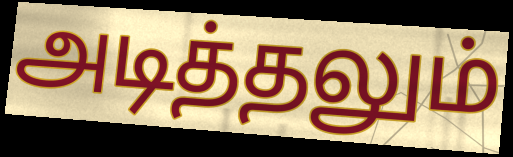
அடித்தலும்